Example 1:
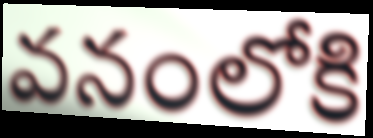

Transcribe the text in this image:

వనంలోకి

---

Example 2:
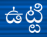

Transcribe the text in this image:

ఉట్టి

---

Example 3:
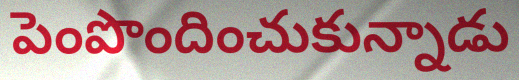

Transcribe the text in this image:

పెంపొందించుకున్నాడు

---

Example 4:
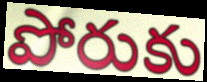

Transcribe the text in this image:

పోరుకు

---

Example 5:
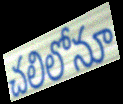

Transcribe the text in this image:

చలిలోనూ